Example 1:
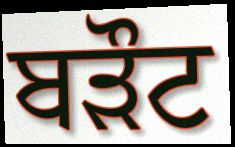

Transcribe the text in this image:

ਬੜੌਟ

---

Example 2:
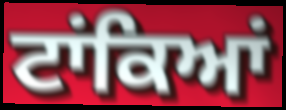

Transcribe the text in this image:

ਟਾਂਕਿਆਂ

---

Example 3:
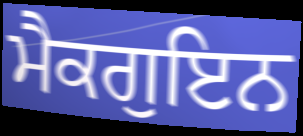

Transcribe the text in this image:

ਮੈਕਗੁਇਨ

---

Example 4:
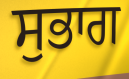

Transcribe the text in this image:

ਸੁਭਾਗ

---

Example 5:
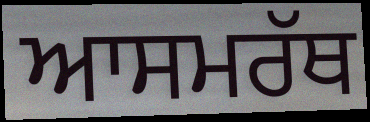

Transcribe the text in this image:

ਆਸਮਰੱਥ